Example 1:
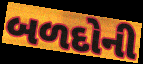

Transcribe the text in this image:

બળદોની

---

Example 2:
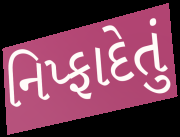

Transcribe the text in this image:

નિપ્ફાદેતું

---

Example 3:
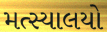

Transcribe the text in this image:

મત્સ્યાલયો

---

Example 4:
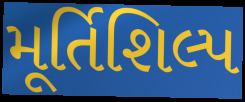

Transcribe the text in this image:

મૂર્તિશિલ્પ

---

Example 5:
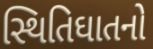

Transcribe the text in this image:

સ્થિતિઘાતનો